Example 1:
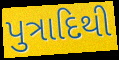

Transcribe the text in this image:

પુત્રાદિથી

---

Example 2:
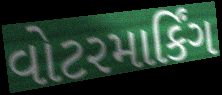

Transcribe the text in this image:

વોટરમાર્કિંગ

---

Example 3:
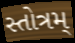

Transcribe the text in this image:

સ્તોત્રમ્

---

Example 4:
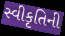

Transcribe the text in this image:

સ્વીકૃતિની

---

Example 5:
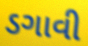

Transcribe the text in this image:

ડગાવી